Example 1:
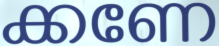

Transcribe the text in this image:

ക്കണേ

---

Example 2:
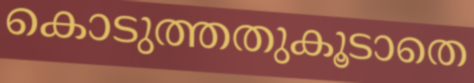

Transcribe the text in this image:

കൊടുത്തതുകൂടാതെ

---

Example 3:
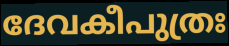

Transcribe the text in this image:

ദേവകീപുത്രഃ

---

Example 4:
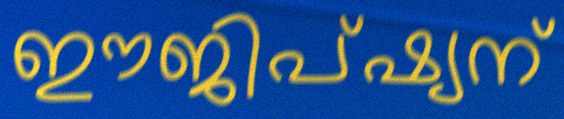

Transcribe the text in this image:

ഈജിപ്ഷ്യന്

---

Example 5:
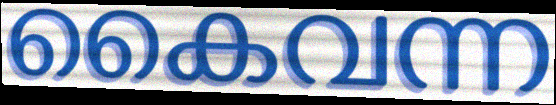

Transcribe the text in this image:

കൈവന്ന